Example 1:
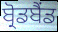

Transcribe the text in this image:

ਬ੍ਰੋਡਬੈਂਡ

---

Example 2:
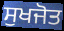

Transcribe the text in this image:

ਸੁਖਜੋਤ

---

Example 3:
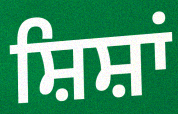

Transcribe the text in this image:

ਸ਼ਿਸ਼ਾਂ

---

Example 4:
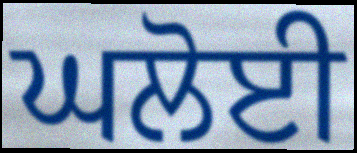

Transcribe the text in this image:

ਘਲੋਈ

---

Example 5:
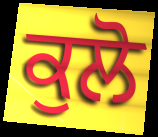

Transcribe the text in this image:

ਕੁਲੋ